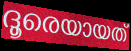
ദൂരെയായത്